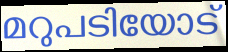
മറുപടിയോട്